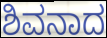
ಶಿವನಾದ